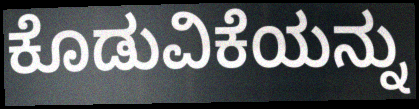
ಕೊಡುವಿಕೆಯನ್ನು